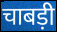
चाबड़ी